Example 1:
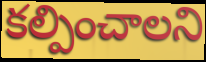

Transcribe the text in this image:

కల్పించాలని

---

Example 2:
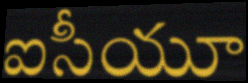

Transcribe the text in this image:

ఐసీయూ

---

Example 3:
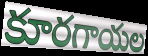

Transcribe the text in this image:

కూరగాయల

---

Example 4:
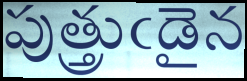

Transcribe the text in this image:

పుత్త్రుఁడైన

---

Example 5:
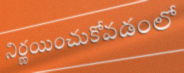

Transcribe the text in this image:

నిర్ణయించుకోవడంలో